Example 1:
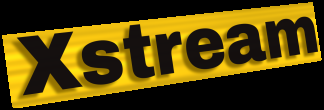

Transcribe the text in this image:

Xstream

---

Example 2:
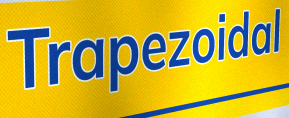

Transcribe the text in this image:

Trapezoidal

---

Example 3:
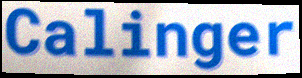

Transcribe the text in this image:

Calinger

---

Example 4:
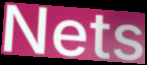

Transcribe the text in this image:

Nets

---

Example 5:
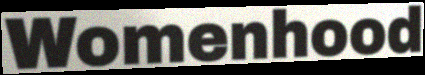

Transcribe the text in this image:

Womenhood